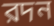
রদন